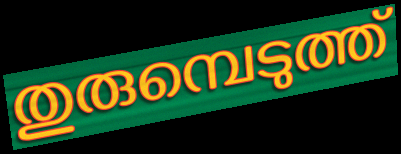
തുരുമ്പെടുത്ത്